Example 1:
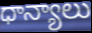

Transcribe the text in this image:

ధాన్యాలు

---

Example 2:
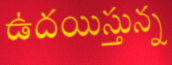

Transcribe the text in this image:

ఉదయిస్తున్న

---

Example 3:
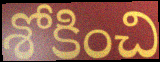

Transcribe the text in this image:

శోకించి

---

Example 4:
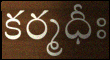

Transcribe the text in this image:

కర్మధీః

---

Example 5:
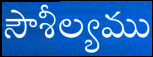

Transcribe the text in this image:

సౌశీల్యము